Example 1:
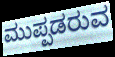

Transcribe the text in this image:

ಮುಪ್ಪಡರುವ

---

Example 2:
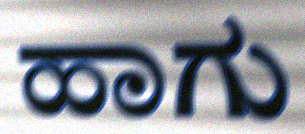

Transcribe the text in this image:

ಹಾಗು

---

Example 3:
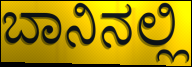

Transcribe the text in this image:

ಬಾನಿನಲ್ಲಿ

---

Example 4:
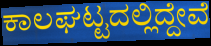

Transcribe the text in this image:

ಕಾಲಘಟ್ಟದಲ್ಲಿದ್ದೇವೆ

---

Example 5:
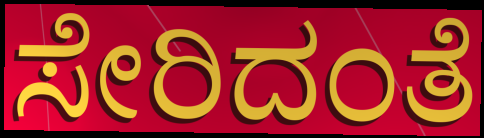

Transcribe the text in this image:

ಸೇರಿದಂತೆ